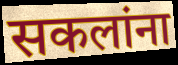
सकलांना